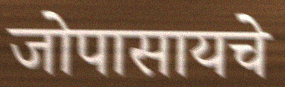
जोपासायचे